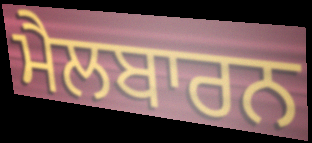
ਮੈਲਬਾਰਨ